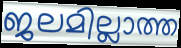
ജലമില്ലാത്ത